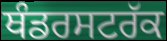
ਥੰਡਰਸਟਰੱਕ